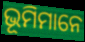
ଭୂମିମାନେ